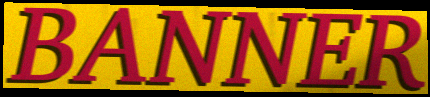
BANNER